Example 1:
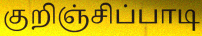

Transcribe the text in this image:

குறிஞ்சிப்பாடி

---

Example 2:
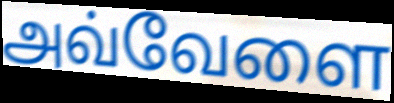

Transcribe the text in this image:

அவ்வேளை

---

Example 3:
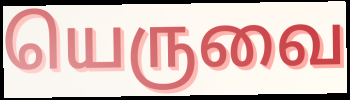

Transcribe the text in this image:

யெருவை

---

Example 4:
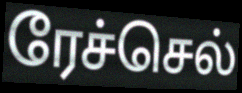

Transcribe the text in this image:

ரேச்செல்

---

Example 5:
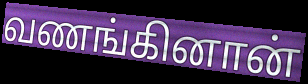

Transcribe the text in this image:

வணங்கினான்